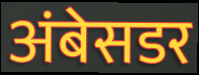
अंबेसडर